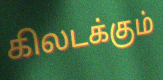
கிலடக்கும்